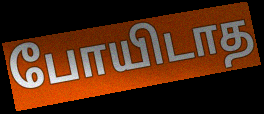
போயிடாத